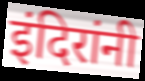
इंदिरांनी